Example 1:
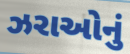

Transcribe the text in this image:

ઝરાઓનું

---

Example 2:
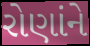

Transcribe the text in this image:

રોણાંને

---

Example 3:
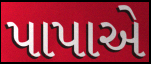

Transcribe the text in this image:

પાપાએ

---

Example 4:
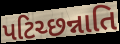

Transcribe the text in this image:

પટિચ્છન્નાતિ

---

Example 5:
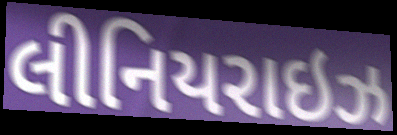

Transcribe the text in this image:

લીનિયરાઇઝ